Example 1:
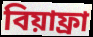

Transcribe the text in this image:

বিয়াফ্রা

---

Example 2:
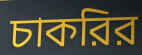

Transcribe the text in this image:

চাকরির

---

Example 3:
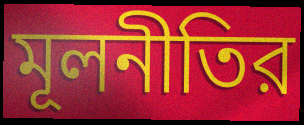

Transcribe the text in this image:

মূলনীতির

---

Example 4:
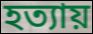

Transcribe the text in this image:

হত্যায়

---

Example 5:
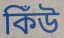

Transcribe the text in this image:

কিঁউ